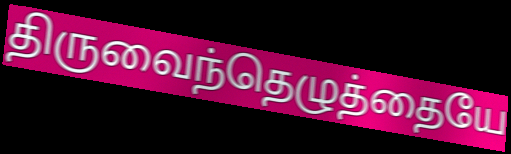
திருவைந்தெழுத்தையே